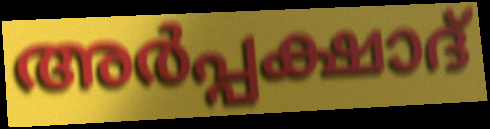
അർപ്പക്ഷാദ്